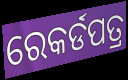
ରେକର୍ଡପତ୍ର